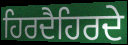
ਹਿਰਦੈਹਿਰਦੇ